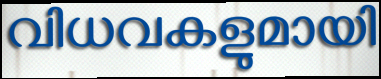
വിധവകളുമായി